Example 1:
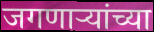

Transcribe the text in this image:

जगणाऱ्यांच्या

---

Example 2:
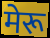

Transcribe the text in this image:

मेरू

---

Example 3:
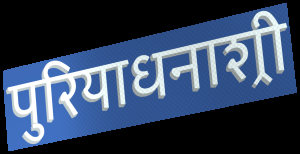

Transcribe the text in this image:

पुरियाधनाश्री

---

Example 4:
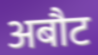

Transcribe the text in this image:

अबौट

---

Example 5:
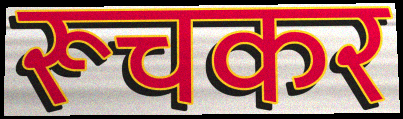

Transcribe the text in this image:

रूचकर